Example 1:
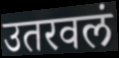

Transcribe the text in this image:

उतरवलं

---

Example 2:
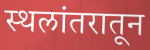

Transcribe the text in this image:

स्थलांतरातून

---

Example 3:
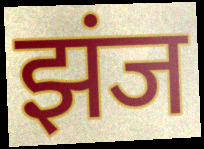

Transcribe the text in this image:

झंज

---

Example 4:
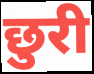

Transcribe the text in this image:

छुरी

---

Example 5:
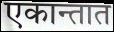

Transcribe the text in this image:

एकान्तात